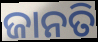
ଜାନତି